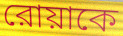
রোয়াকে